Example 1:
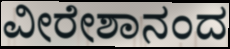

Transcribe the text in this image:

ವೀರೇಶಾನಂದ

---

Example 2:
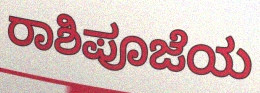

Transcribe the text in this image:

ರಾಶಿಪೂಜೆಯ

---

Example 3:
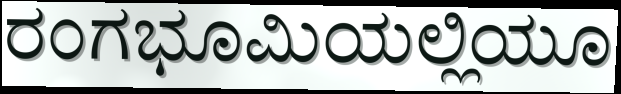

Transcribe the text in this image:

ರಂಗಭೂಮಿಯಲ್ಲಿಯೂ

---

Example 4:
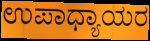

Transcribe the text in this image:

ಉಪಾಧ್ಯಾಯರ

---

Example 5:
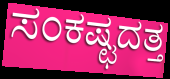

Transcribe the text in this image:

ಸಂಕಷ್ಟದತ್ತ